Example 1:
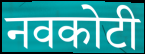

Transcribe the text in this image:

नवकोटी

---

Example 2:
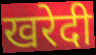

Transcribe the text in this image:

खरेदी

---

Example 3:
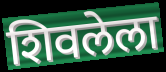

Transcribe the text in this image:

शिवलेला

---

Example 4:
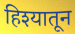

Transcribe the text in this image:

हिश्यातून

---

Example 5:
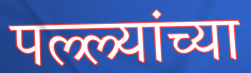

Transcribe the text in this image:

पल्ल्यांच्या